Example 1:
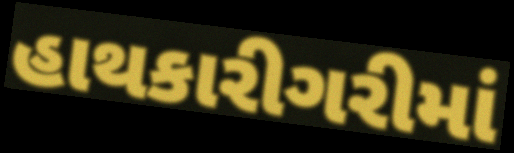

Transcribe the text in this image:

હાથકારીગરીમાં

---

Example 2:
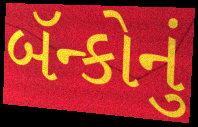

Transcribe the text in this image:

બૅન્કોનું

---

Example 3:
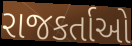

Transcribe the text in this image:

રાજકર્તાઓ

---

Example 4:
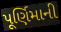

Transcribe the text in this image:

પૂર્ણિમાની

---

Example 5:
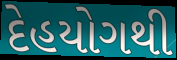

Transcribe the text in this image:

દેહયોગથી